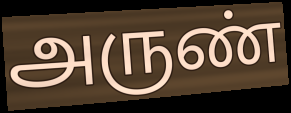
அருண்